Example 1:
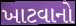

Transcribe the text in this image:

ખાટવાનો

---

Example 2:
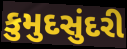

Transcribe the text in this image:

કુમુદસુંદરી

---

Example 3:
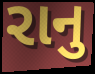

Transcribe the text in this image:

રાનુ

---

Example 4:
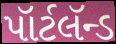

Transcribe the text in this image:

પૉર્ટલૅન્ડ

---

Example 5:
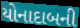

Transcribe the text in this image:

યોનાદાબની